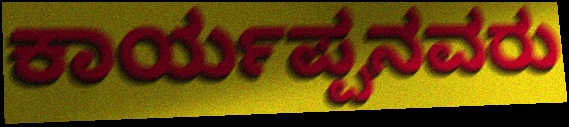
ಕಾರ್ಯಪ್ಪನವರು